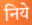
निये